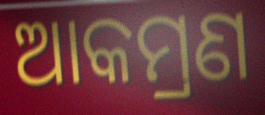
ଆକମ୍ରଣ